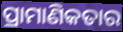
ପ୍ରାମାଣିକତାର